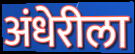
अंधेरीला